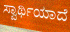
ಸ್ವಾರ್ಥಿಯಾದೆ